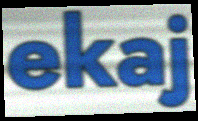
ekaj